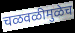
चळवळीमुळेच